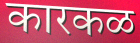
कारकळ